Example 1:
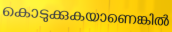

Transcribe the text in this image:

കൊടുക്കുകയാണെങ്കിൽ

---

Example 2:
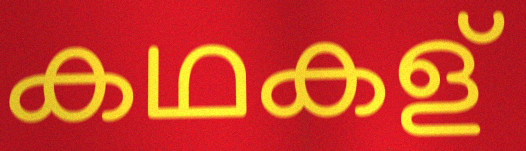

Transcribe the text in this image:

കഥകള്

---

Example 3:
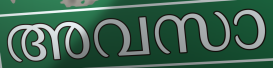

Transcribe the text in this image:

അവസാ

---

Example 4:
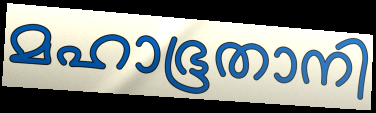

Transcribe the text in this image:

മഹാഭൂതാനി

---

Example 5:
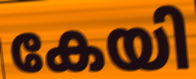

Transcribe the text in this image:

കേയി